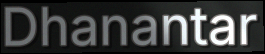
Dhanantar